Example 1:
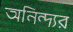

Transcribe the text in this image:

অনিন্দ্যর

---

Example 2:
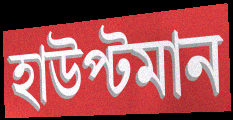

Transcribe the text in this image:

হাউপ্টমান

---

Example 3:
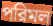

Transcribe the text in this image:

পরিমল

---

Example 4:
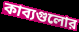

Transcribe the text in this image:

কাব্যগুলোর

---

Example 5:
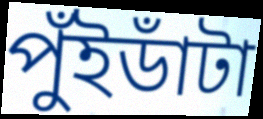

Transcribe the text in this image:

পুঁইডাঁটা